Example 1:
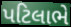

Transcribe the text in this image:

પટિલાભે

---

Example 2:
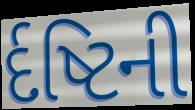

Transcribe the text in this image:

ર્દષ્ટિની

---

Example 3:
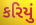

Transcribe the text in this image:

કરિયું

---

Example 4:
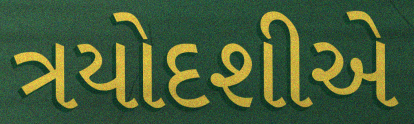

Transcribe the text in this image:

ત્રયોદશીએ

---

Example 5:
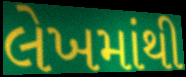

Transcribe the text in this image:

લેખમાંથી